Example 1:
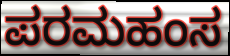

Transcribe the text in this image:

ಪರಮಹಂಸ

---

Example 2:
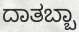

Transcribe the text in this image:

ದಾತಬ್ಬಾ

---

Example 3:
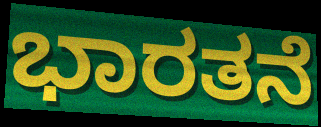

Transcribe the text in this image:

ಭಾರತನೆ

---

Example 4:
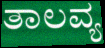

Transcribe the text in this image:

ತಾಲವ್ಯ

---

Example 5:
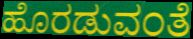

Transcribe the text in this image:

ಹೊರಡುವಂತೆ